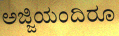
ಅಜ್ಜಿಯಂದಿರೂ